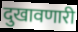
दुखावणारी